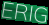
ERIG